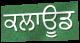
ਕਲਾਊਡ